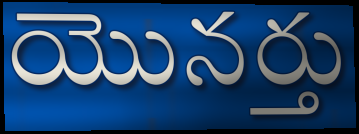
యొనర్తు